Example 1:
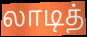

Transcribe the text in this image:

லாடித்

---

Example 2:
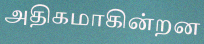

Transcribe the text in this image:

அதிகமாகின்றன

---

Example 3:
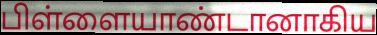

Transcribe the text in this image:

பிள்ளையாண்டானாகிய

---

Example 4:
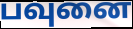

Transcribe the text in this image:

பவுனை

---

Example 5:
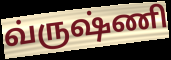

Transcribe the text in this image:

வ்ருஷ்ணி